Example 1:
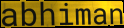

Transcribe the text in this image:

abhiman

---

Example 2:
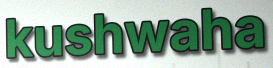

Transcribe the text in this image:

kushwaha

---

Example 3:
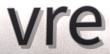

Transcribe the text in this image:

vre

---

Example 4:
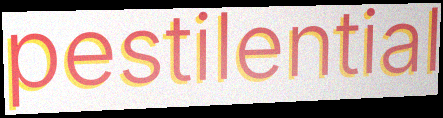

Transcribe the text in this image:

pestilential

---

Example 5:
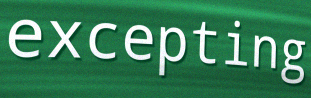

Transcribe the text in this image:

excepting